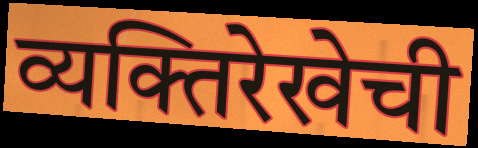
व्यक्तिरेखेची